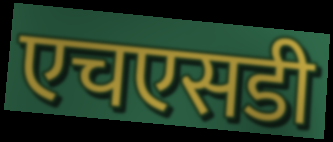
एचएसडी